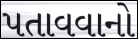
પતાવવાનો